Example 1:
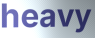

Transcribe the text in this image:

heavy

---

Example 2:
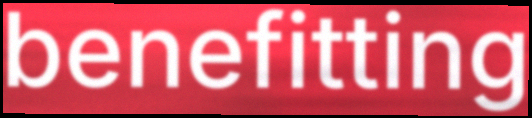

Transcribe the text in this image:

benefitting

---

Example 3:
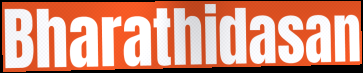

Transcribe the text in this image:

Bharathidasan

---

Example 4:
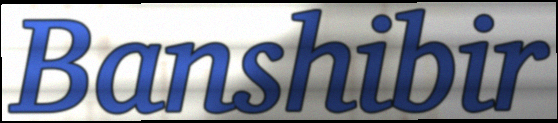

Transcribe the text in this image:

Banshibir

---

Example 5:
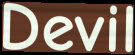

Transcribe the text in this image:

Devil